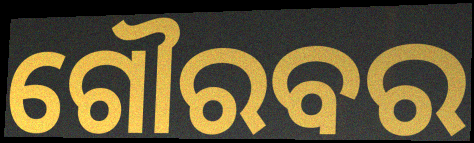
ଗୌରବର